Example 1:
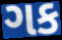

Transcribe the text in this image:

ગક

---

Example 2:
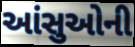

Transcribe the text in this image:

આંસુઓની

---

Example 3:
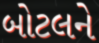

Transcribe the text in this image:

બોટલને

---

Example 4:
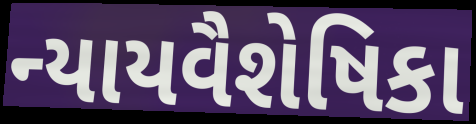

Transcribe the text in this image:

ન્યાયવૈશેષિકા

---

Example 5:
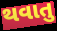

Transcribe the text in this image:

થવાતુ